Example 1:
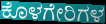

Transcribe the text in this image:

ಕೊಳಗೇರಿಗಳ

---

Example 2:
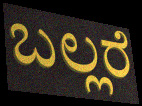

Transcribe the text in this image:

ಬಲ್ಲರೆ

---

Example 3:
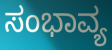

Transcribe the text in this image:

ಸಂಭಾವ್ಯ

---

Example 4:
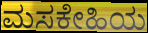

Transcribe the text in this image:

ಮಸಕೇಹಿಯ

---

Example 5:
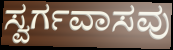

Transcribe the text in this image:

ಸ್ವರ್ಗವಾಸವು